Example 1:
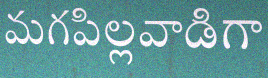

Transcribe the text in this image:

మగపిల్లవాడిగా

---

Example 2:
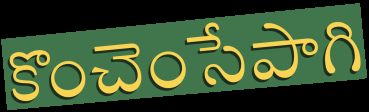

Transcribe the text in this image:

కొంచెంసేపాగి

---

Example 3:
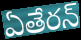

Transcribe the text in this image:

ఏతేరన్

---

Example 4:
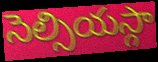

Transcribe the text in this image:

సెల్సియస్గా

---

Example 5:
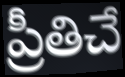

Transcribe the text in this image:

ప్రీతిచే